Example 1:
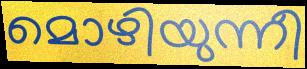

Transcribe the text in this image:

മൊഴിയുന്നീ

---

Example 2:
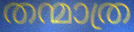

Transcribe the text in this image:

തന്മാത്ര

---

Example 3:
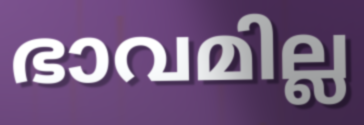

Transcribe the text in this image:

ഭാവമില്ല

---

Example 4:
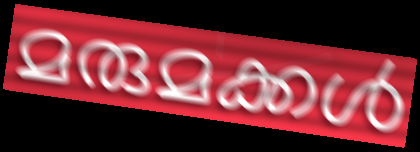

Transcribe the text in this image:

മരുമക്കൾ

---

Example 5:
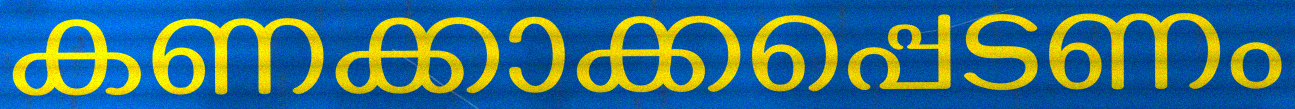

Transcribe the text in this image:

കണക്കാക്കപ്പെടണം